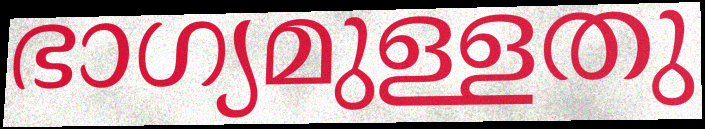
ഭാഗ്യമുള്ളതു